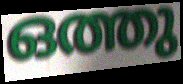
ഒത്തു